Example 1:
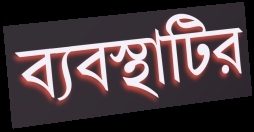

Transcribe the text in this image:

ব্যবস্থাটির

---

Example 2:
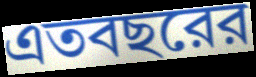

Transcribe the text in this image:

এতবছরের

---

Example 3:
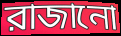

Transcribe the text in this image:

রাজানো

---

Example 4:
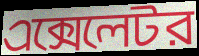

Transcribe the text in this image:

এক্সেলেটর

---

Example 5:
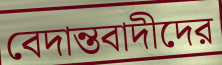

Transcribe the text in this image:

বেদান্তবাদীদের